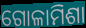
ଗୋଳାମିଶା